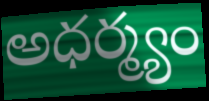
అధర్మ్యం